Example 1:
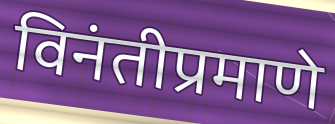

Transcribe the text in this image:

विनंतीप्रमाणे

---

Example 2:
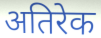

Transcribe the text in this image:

अतिरेक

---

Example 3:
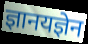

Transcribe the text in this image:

ज्ञानयज्ञेन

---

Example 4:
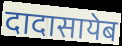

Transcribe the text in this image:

दादासायेब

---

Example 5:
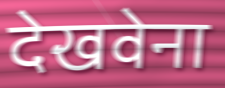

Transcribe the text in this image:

देखवेना